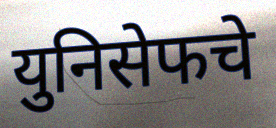
युनिसेफचे